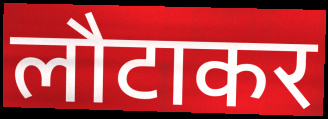
लौटाकर